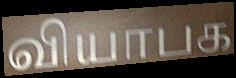
வியாபக